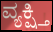
ವ್ಯಕ್ಷ್ತಿ